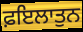
ਫ਼ਇਲਾਤੁਨ